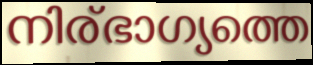
നിര്ഭാഗ്യത്തെ